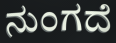
ನುಂಗದೆ